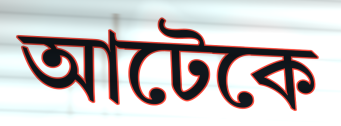
আটেকে